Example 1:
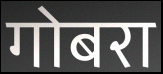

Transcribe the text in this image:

गोबरा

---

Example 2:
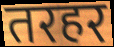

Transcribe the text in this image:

तरहर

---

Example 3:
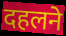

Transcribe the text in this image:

दहलने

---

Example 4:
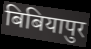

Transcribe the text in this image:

बिबियापुर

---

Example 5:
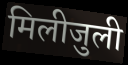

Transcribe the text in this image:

मिलीजुली